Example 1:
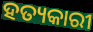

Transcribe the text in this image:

ହତ୍ୟକାରୀ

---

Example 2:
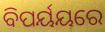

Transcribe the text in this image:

ବିପର୍ୟୟରେ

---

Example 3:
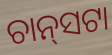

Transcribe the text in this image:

ଚାନ୍‌ସଟା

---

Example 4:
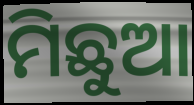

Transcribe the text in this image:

ମିଛୁଆ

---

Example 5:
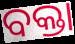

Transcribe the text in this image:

ବକ୍ତା